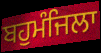
ਬਹੁਮੰਜਿਲਾ